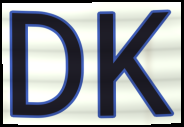
DK